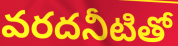
వరదనీటితో